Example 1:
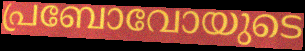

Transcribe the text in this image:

പ്രബോവോയുടെ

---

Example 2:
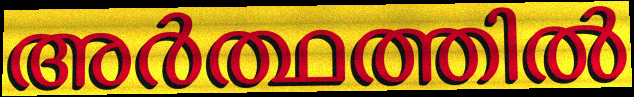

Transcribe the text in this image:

അർത്ഥത്തിൽ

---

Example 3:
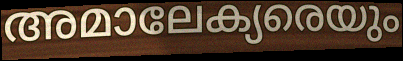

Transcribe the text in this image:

അമാലേക്യരെയും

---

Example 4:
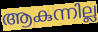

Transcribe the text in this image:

ആകുന്നില്ല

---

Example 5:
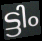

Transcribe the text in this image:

ട്ടിം